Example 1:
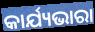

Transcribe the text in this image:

କାର୍ଯ୍ୟଭାରା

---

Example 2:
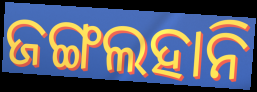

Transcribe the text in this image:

ଜଙ୍ଗଲହାନି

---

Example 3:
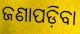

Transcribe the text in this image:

ଜଣାପଡ଼ିବା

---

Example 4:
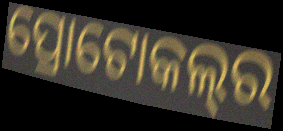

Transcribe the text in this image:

ପ୍ରୋଟୋକଲ୍‌ର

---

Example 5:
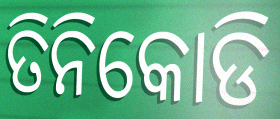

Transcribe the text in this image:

ତିନିକୋଡି